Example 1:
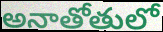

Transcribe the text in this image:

అనాతోతులో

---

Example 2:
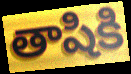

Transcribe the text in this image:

తాషికి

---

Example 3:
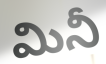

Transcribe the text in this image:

మినీ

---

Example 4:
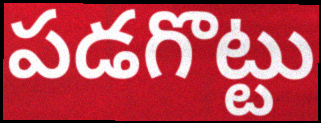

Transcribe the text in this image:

పడగొట్టు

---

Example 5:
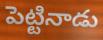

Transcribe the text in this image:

పెట్టినాడు